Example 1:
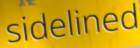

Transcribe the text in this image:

sidelined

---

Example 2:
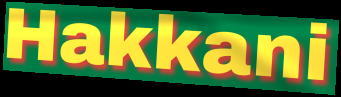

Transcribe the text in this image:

Hakkani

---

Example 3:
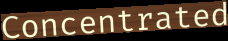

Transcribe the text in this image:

Concentrated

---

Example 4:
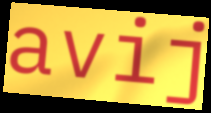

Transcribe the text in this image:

avij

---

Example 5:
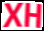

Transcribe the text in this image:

XH